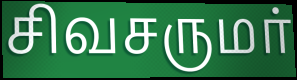
சிவசருமர்